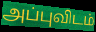
அப்புவிடம்